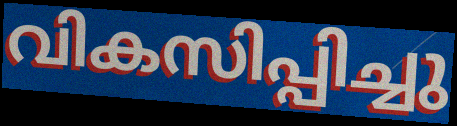
വികസിപ്പിച്ചു